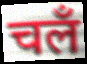
चलँ